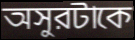
অসুরটাকে